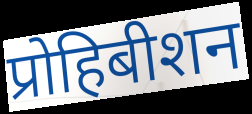
प्रोहिबीशन